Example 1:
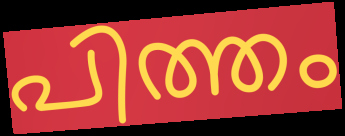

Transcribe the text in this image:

പിത്തം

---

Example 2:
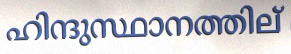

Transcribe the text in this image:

ഹിന്ദുസ്ഥാനത്തില്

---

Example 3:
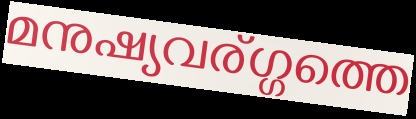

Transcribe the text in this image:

മനുഷ്യവര്ഗ്ഗത്തെ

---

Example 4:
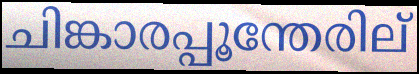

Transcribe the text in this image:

ചിങ്കാരപ്പൂന്തേരില്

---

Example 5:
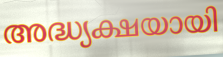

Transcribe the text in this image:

അദ്ധ്യക്ഷയായി